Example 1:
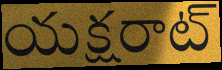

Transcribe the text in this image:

యక్షరాట్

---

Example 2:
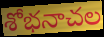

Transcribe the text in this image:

శోభనాచల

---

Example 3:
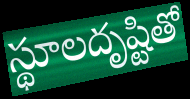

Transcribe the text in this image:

స్థూలదృష్టితో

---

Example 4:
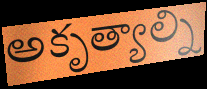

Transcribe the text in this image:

అకృత్యాల్ని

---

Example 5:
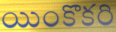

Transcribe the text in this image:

యింకొకరి